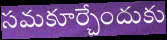
సమకూర్చేందుకు